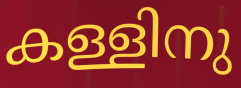
കള്ളിനു